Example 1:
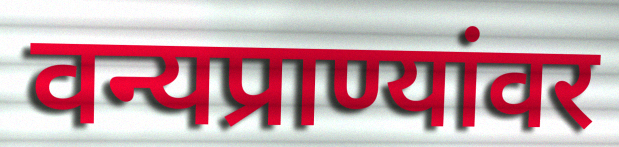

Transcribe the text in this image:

वन्यप्राण्यांवर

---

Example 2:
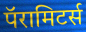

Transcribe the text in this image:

पॅरामिटर्स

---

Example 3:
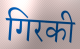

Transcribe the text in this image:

गिरकी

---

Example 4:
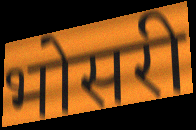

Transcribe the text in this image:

भोसरी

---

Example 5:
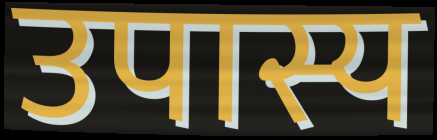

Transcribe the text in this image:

उपास्य